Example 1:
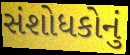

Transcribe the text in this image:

સંશોધકોનું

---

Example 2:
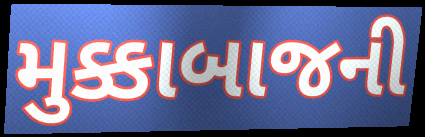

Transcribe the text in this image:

મુક્કાબાજની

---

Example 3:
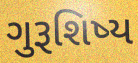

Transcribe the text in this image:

ગુરૂશિષ્ય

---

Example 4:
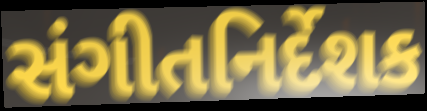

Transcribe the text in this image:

સંગીતનિર્દેશક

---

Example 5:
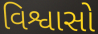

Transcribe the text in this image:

વિશ્વાસો